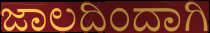
ಜಾಲದಿಂದಾಗಿ